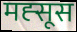
मह्सूस